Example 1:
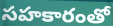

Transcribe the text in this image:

సహకారంతో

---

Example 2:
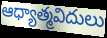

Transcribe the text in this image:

ఆధ్యాత్మవిదులు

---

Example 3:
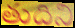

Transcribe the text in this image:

తుదిని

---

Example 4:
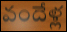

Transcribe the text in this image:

వందేళ్ల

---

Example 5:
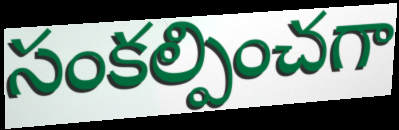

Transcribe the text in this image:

సంకల్పించగా